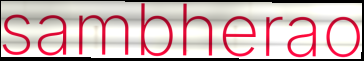
sambherao